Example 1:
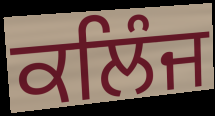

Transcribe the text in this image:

ਕਲਿੰਜ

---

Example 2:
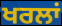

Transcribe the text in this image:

ਖਰਲਾਂ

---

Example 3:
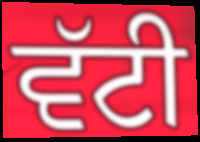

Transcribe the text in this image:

ਵੱਟੀ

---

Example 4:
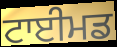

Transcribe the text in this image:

ਟਾਈਮਡ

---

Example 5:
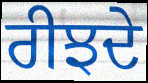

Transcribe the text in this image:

ਰੀਝਦੇ